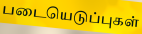
படையெடுப்புகள்